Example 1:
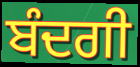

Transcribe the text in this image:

ਬੰਦਗੀ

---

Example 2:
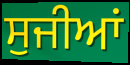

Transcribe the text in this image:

ਸੁਜੀਆਂ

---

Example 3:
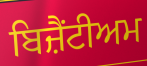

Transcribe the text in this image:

ਬਿਜ਼ੈਂਟੀਅਮ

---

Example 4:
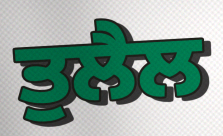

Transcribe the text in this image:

ਤੁਲੈਲ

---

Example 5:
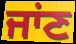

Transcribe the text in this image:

ਜਾਂਣ